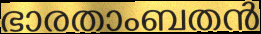
ഭാരതാംബതൻ